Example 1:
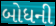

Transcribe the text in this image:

બોધની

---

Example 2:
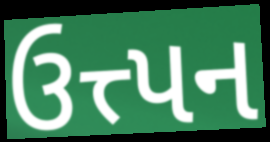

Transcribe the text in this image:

ઉત્ત્પન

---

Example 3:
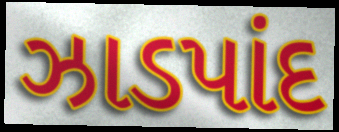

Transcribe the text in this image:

ઝાડપાંદ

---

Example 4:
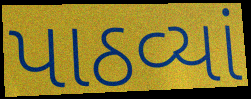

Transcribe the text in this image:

પાઠવ્યાં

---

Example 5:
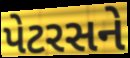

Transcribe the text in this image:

પેટરસને